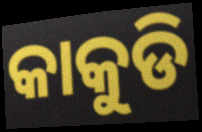
କାକୁଡି